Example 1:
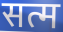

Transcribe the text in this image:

सत्म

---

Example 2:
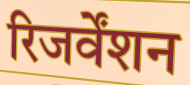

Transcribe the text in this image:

रिजर्वेंशन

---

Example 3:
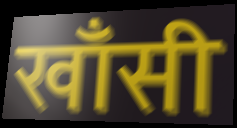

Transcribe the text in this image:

खाँसी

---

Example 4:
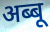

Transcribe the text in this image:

अब्बू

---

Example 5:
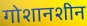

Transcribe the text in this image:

गोशानशीन